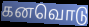
கனவொடு